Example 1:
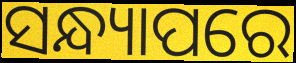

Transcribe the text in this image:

ସନ୍ଧ୍ୟାପରେ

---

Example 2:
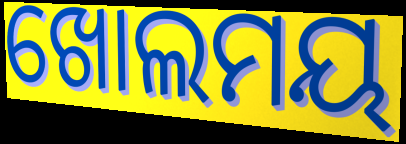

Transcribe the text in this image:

ଖୋଲମୟ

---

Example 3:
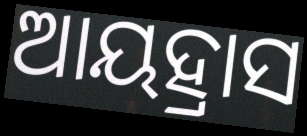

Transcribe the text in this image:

ଆୟହ୍ରାସ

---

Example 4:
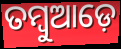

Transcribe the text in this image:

ତମ୍ବୁଆଡ଼େ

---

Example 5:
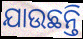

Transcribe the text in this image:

ଯାଉଛନ୍ତି